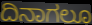
ದಿನಾಗಲೂ